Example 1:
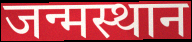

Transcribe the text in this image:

जन्मस्थान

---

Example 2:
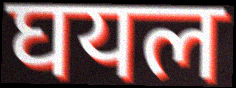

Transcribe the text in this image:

घयल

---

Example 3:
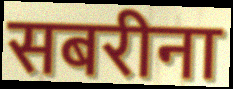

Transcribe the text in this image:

सबरीना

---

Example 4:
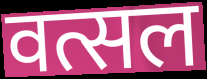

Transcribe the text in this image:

वत्सल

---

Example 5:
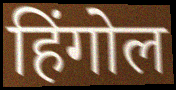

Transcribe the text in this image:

हिंगोल